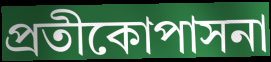
প্রতীকোপাসনা